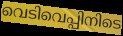
വെടിവെപ്പിനിടെ